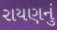
રાયણનું